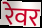
रेवर